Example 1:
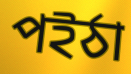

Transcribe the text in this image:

পইঠা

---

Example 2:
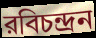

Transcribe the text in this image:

রবিচন্দ্রন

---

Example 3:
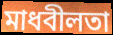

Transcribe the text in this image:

মাধবীলতা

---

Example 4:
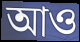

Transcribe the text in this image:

আও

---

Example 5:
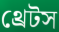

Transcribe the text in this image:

থ্রেটস